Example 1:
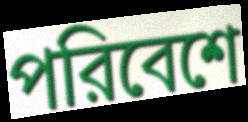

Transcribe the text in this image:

পরিবেশে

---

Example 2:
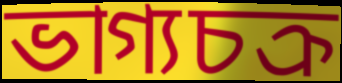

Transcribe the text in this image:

ভাগ্যচক্র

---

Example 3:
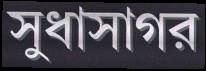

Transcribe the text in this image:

সুধাসাগর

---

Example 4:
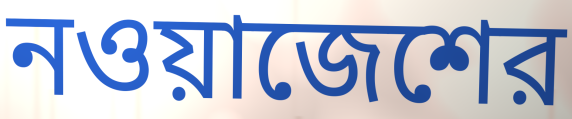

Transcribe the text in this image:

নওয়াজেশের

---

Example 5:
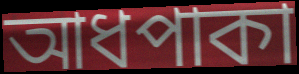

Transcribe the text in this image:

আধপাকা